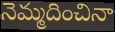
నెమ్మదించినా